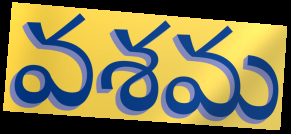
వశమ